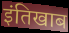
इंतिखाब